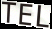
TEL